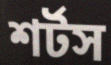
শর্টস